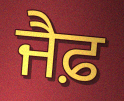
ਜੈਫ਼